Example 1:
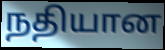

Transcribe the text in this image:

நதியான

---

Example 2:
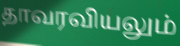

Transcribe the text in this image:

தாவரவியலும்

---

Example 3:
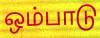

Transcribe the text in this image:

ஒம்பாடு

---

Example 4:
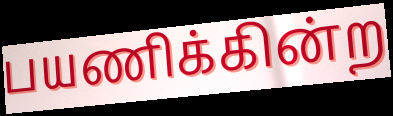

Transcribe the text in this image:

பயணிக்கின்ற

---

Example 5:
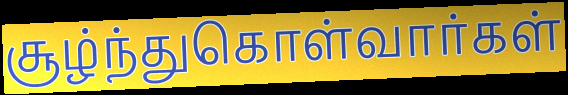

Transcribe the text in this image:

சூழ்ந்துகொள்வார்கள்